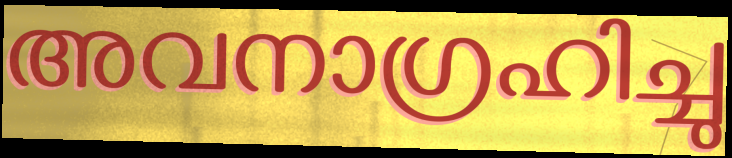
അവനാഗ്രഹിച്ചു